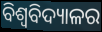
ବିଶ୍ୱବିଦ୍ୟାଳର